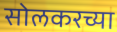
सोलकरच्या